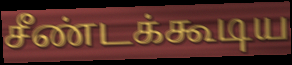
சீண்டக்கூடிய